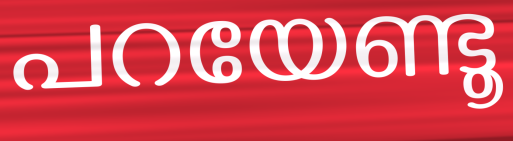
പറയേണ്ടൂ